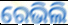
ରେଭିଲି